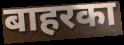
बाहरका